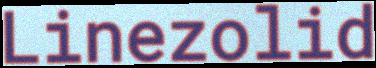
Linezolid